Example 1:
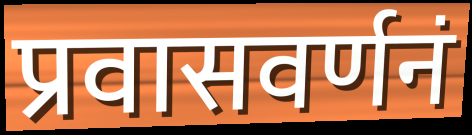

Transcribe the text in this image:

प्रवासवर्णनं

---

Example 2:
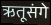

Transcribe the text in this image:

ऋतूसंगे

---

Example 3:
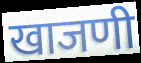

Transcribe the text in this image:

खाजणी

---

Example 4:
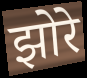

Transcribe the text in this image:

झोरे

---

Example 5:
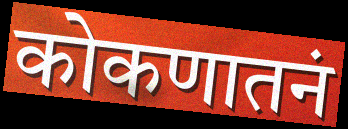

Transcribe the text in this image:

कोकणातनं